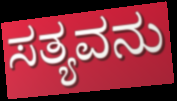
ಸತ್ಯವನು